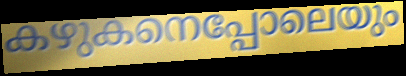
കഴുകനെപ്പോലെയും